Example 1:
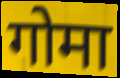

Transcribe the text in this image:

गोमा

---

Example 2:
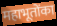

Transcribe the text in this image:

महाभूतोंका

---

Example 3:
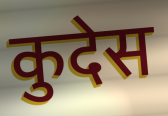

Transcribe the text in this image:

कुदेस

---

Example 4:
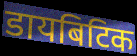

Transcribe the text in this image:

डायबिटिक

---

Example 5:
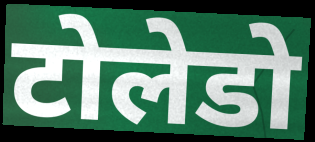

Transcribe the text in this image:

टोलेडो